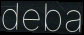
deba